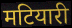
मटियारी